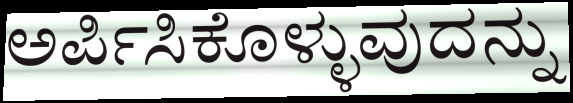
ಅರ್ಪಿಸಿಕೊಳ್ಳುವುದನ್ನು